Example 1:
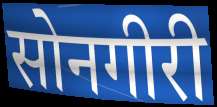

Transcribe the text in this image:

सोनगीरी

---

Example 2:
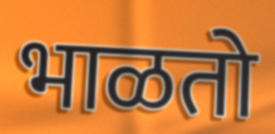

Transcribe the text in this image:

भाळतो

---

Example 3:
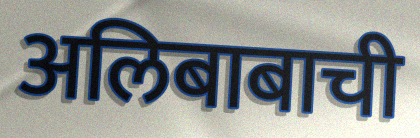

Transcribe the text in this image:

अलिबाबाची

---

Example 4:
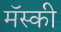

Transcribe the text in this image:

मॅस्की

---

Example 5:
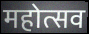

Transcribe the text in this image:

महोत्सव